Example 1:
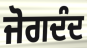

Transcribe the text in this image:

ਜੋਗਦੰਦ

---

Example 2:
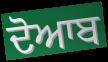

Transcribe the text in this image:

ਦੋਆਬ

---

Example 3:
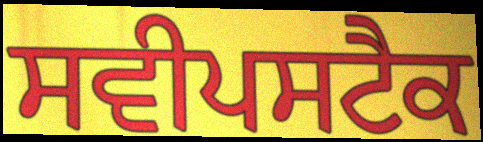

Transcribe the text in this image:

ਸਵੀਪਸਟੈਕ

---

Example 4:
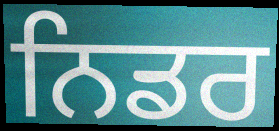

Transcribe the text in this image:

ਨਿਡਰ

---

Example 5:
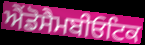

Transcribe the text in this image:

ਐਂਡੋਸੈਮਬੀਓਟਿਕ